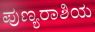
ಪುಣ್ಯರಾಶಿಯ